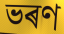
ভৰণ